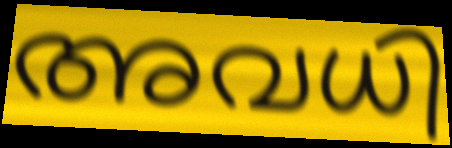
അവധി